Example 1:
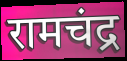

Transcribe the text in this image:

रामचंद्र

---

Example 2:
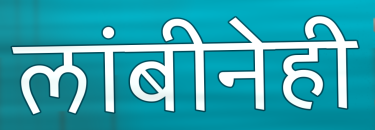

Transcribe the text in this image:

लांबीनेही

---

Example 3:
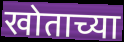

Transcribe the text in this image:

खोताच्या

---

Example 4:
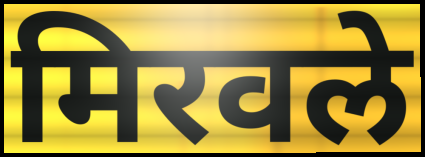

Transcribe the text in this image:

मिरवले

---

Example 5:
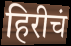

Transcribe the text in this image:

हिरीचं